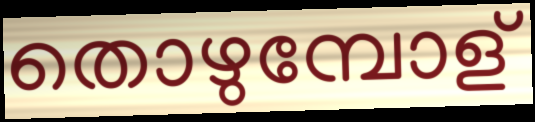
തൊഴുമ്പോള്